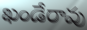
ఖండేరావు